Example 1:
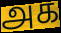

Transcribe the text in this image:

அக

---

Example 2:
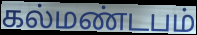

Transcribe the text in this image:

கல்மண்டபம்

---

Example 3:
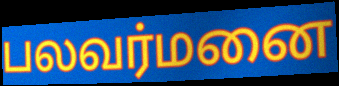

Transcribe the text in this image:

பலவர்மனை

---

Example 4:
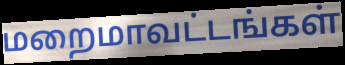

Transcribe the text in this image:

மறைமாவட்டங்கள்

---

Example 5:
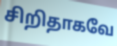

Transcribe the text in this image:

சிறிதாகவே